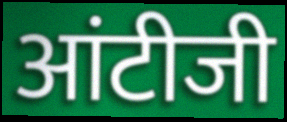
आंटीजी